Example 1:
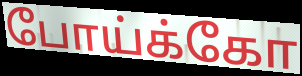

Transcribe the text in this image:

போய்க்கோ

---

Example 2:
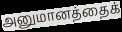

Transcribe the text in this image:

அனுமானத்தைக்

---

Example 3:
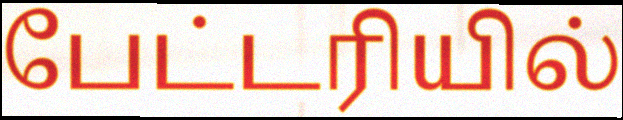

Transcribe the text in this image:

பேட்டரியில்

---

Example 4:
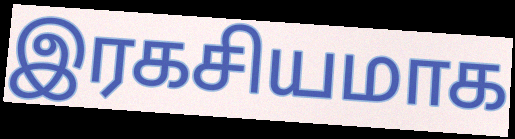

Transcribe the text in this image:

இரகசியமாக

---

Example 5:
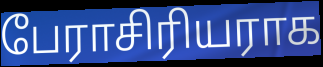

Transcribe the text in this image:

பேராசிரியராக